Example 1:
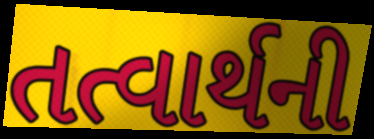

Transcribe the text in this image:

તત્વાર્થની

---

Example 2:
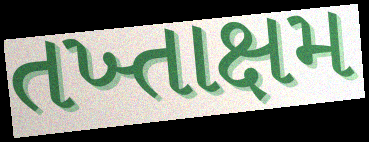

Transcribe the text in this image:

તખ્તાક્ષમ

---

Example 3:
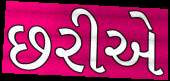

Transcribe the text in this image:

છરીએ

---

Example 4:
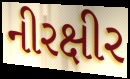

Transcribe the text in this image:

નીરક્ષીર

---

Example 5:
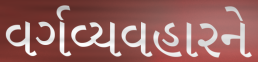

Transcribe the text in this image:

વર્ગવ્યવહારને